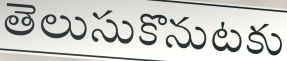
తెలుసుకొనుటకు